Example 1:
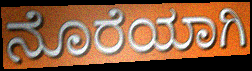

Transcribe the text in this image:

ನೊರೆಯಾಗಿ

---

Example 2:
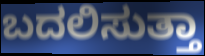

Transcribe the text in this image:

ಬದಲಿಸುತ್ತಾ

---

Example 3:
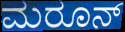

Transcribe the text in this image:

ಮರೂನ್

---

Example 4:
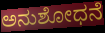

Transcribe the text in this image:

ಅನುಶೋಧನೆ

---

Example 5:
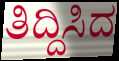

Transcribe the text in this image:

ತಿದ್ದಿಸಿದ